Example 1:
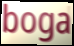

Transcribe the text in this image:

boga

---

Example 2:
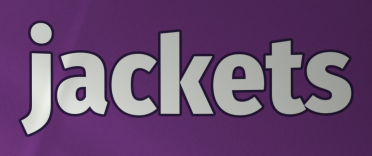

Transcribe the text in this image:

jackets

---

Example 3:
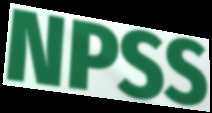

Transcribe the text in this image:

NPSS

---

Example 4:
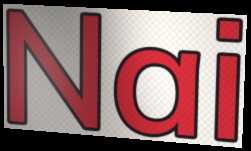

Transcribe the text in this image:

Nai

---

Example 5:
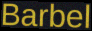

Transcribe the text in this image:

Barbel